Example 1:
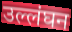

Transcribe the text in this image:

उल्लंघन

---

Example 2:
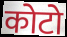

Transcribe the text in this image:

कोटो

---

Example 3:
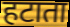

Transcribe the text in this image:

हटाता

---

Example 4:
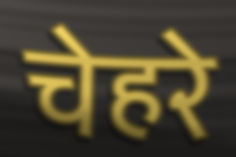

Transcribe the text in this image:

चेहरे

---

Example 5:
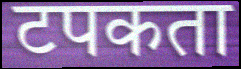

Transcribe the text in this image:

टपकता